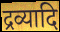
द्रव्यादि